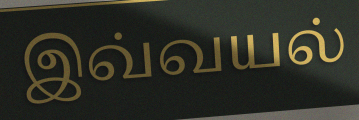
இவ்வயல்